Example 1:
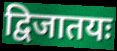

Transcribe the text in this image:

द्विजातयः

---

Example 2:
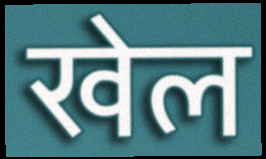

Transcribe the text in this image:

खेल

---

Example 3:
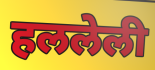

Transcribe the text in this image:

हललेली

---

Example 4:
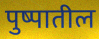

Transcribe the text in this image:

पुष्पातील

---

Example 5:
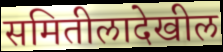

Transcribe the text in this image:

समितीलादेखील